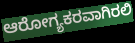
ಆರೋಗ್ಯಕರವಾಗಿರಲಿ